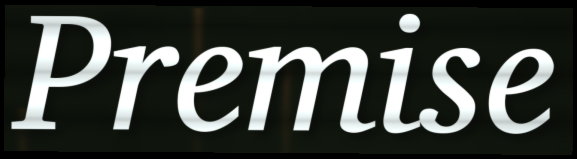
Premise